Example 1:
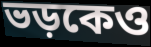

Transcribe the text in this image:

ভড়কেও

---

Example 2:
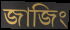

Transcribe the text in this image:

জাজিং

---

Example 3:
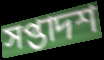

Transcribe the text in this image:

সপ্তাদশ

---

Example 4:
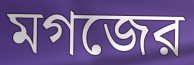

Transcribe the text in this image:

মগজের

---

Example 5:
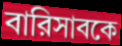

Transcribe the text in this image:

বারিসাবকে